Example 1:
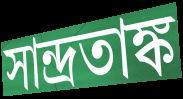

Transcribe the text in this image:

সান্দ্রতাঙ্ক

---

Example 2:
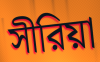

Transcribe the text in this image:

সীরিয়া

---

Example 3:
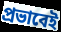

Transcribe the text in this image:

প্রভাবেই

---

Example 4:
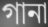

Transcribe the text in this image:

গানা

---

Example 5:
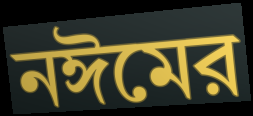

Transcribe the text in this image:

নঈমের